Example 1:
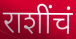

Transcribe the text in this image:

राशींचं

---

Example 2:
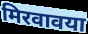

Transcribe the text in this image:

मिरवावया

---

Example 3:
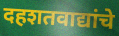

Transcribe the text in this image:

दहशतवाद्यांचे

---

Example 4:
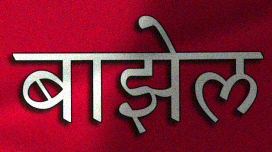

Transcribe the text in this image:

बाझेल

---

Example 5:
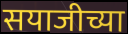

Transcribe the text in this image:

सयाजीच्या